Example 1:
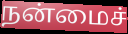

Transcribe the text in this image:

நன்மைச்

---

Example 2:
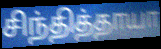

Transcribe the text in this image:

சிந்தித்தாயா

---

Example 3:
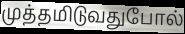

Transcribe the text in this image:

முத்தமிடுவதுபோல்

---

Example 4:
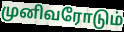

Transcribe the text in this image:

முனிவரோடும்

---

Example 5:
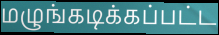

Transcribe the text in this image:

மழுங்கடிக்கப்பட்ட